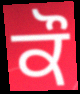
ਕੌ